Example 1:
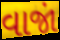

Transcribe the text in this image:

વાજાં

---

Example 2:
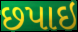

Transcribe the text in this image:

છપાઇ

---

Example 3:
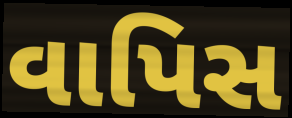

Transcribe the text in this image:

વાપિસ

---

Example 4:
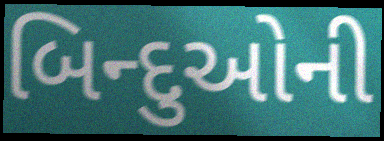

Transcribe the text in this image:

બિન્દુઓની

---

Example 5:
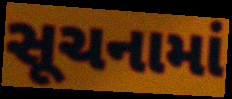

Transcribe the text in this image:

સૂચનામાં